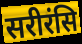
सरीरंसि